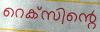
റെക്‌സിന്റെ